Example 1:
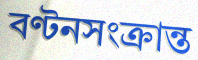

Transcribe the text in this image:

বণ্টনসংক্রান্ত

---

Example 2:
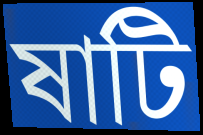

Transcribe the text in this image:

ষাটি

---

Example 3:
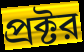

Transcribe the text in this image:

প্রক্টর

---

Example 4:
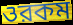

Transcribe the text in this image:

ওরকম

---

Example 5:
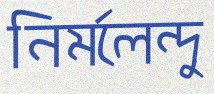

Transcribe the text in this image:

নির্মলেন্দু